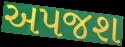
અપજશ